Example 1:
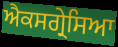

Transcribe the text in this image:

ਐਕਸਗ੍ਰੇਸਿਆ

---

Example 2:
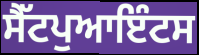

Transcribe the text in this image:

ਸੈੱਟਪੁਆਇੰਟਸ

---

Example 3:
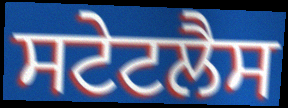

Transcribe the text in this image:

ਸਟੇਟਲੈਸ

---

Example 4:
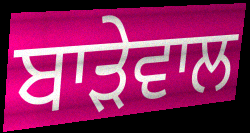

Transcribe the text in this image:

ਬਾੜੇਵਾਲ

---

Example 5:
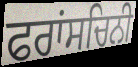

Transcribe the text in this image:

ਫਰਾਂਸਚਿਨੀ